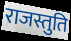
राजस्तुति